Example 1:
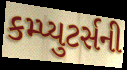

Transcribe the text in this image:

કમ્પ્યુટર્સની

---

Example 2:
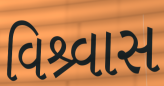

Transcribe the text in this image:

વિશ્ર્વાસ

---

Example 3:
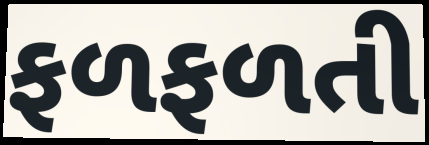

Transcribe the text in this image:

ફળફળતી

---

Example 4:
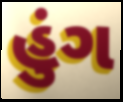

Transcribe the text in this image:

હુંગ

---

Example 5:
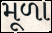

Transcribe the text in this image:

મૂળા